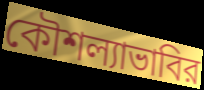
কৌশল্যাভাবির